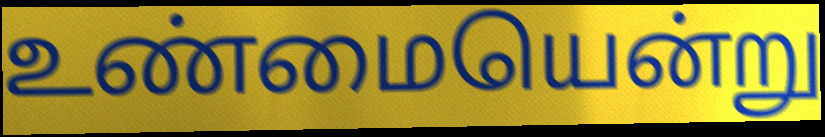
உண்மையென்று